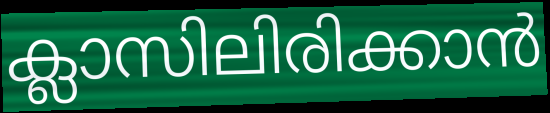
ക്ലാസിലിരിക്കാൻ